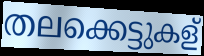
തലക്കെട്ടുകള്